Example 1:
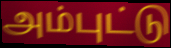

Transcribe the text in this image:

அம்புட்டு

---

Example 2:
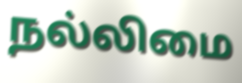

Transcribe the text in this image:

நல்லிமை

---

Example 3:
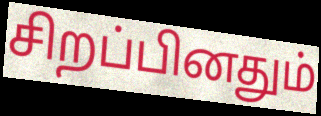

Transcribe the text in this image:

சிறப்பினதும்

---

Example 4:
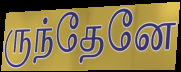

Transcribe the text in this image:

ருந்தேனே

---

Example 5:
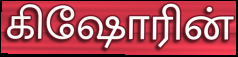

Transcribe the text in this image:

கிஷோரின்